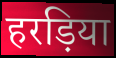
हरड़िया